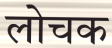
लोचक